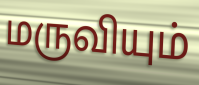
மருவியும்